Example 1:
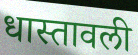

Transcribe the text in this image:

धास्तावली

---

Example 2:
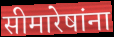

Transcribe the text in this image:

सीमारेषांना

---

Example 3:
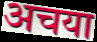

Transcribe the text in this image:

अचया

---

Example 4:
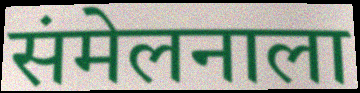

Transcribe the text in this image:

संमेलनाला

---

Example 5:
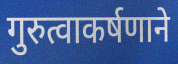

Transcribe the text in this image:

गुरुत्वाकर्षणाने